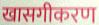
खासगीकरण